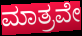
ಮಾತ್ರವೇ